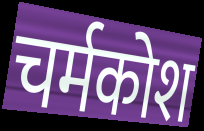
चर्मकोश